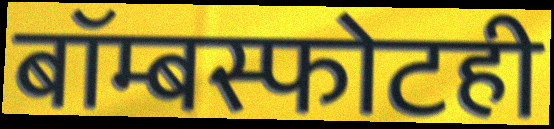
बॉम्बस्फोटही